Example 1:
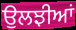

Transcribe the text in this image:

ਉਲਝੀਆਂ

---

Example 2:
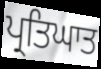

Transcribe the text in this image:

ਪ੍ਰਤਿਘਾਤ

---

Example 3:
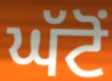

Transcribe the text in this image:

ਘੱਟੋਂ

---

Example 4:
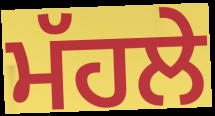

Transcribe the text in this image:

ਮੱਹਲੇ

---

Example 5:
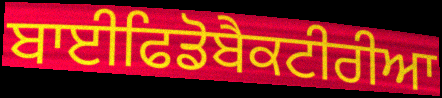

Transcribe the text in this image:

ਬਾਈਫਿਡੋਬੈਕਟੀਰੀਆ